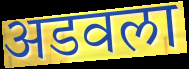
अडवला